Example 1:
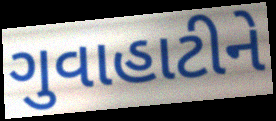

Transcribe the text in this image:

ગુવાહાટીને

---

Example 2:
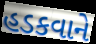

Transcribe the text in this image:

હડકવાને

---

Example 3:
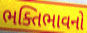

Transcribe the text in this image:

ભક્તિભાવનો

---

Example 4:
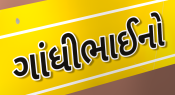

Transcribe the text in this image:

ગાંધીભાઈનો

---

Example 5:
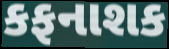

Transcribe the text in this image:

કફનાશક